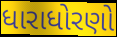
ધારાધોરણો